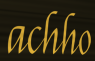
achho